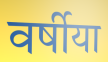
वर्षीया